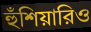
হুঁশিয়ারিও